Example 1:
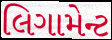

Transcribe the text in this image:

લિગામેન્ટ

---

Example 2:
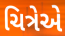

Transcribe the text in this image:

ચિત્રેએ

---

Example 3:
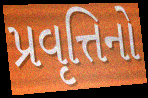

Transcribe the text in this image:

પ્રવૃત્તિનો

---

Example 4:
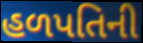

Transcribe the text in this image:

હળપતિની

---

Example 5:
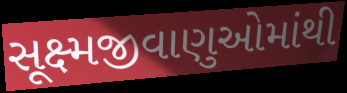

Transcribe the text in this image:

સૂક્ષ્મજીવાણુઓમાંથી